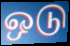
ஒடு